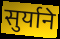
सुर्याने